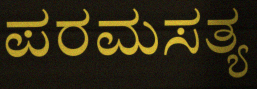
ಪರಮಸತ್ಯ